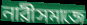
নারীসমাজে